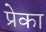
प्रेका